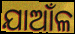
ଯାଆଁଳ